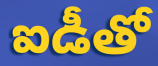
ఐడీతో